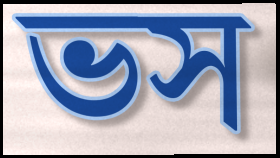
ভস